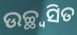
ଉଚ୍ଛ୍ୱସିତ